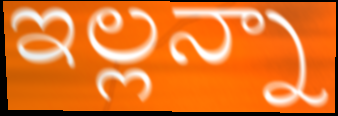
ఇల్లన్నా